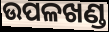
ଉପଳଖଣ୍ଡ